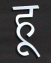
हू